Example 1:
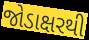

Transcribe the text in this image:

જોડાક્ષરથી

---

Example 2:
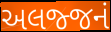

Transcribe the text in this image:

અલજ્જનં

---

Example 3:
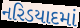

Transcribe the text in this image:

નરિડયાદમાં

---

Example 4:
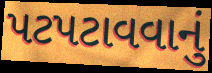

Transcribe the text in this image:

પટપટાવવાનું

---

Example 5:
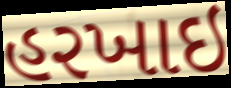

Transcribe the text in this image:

હરખાઇ